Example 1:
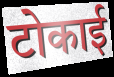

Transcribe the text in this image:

टोकाई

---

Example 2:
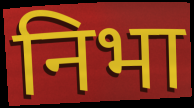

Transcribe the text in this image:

निभा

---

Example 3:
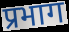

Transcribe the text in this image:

प्रभाग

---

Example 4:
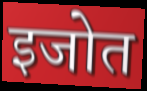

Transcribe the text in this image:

इजोत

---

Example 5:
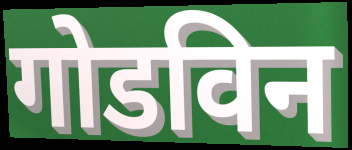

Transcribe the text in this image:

गोडविन